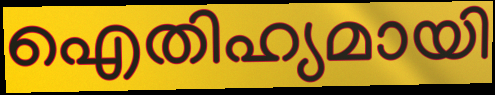
ഐതിഹ്യമായി